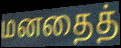
மனதைத்